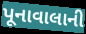
પૂનાવાલાની